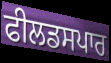
ਫੀਲਡਸਪਾਰ